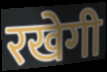
रखेगी